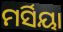
ମର୍ସିୟା